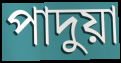
পাদুয়া